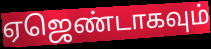
ஏஜெண்டாகவும்